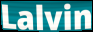
Lalvin